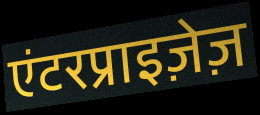
एंटरप्राइज़ेज़